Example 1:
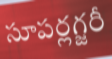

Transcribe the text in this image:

సూపర్లగ్జరీ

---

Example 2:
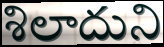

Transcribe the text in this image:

శిలాదుని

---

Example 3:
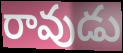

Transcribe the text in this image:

రావుడు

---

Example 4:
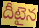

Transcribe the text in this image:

దీటైన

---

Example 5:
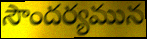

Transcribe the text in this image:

సౌందర్యమున